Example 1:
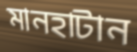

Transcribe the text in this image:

মানহাটান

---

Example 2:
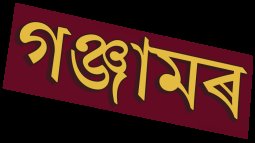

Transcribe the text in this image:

গঞ্জামৰ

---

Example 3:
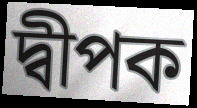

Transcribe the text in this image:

দ্বীপক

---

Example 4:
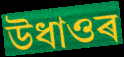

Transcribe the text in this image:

উধাওৰ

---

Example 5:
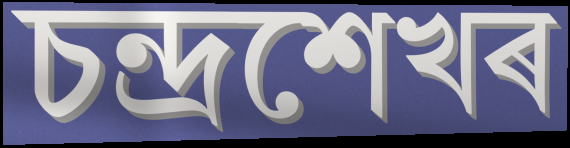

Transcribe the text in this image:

চন্দ্ৰশেখৰ